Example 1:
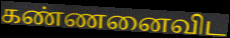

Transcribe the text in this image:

கண்ணனைவிட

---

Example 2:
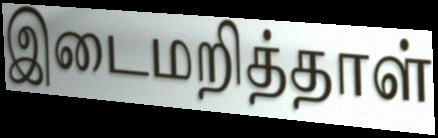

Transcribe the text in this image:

இடைமறித்தாள்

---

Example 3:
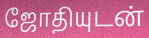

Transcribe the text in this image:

ஜோதியுடன்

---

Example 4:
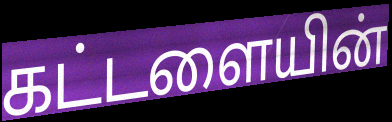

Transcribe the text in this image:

கட்டளையின்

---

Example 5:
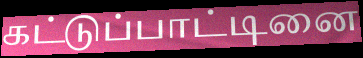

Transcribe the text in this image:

கட்டுப்பாட்டினை